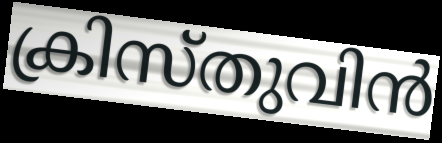
ക്രിസ്തുവിൻ